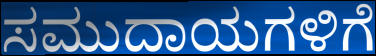
ಸಮುದಾಯಗಳಿಗೆ